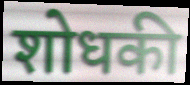
शोधकी